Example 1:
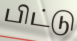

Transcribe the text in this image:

பிட்டு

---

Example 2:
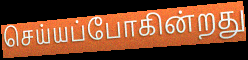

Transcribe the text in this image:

செய்யப்போகின்றது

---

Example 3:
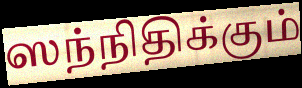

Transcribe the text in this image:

ஸந்நிதிக்கும்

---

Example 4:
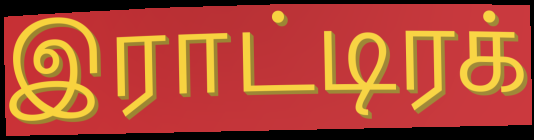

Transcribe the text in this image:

இராட்டிரக்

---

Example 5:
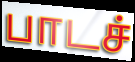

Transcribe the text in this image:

பாடச்